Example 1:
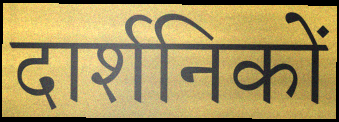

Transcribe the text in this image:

दार्शनिकों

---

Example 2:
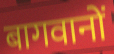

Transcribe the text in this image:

बागवानों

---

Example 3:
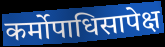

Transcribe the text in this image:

कर्मोपाधिसापेक्ष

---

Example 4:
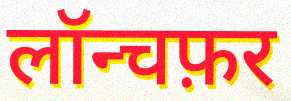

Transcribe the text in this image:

लॉन्चफ़र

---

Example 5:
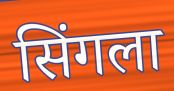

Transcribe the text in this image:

सिंगला